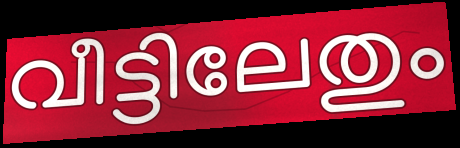
വീട്ടിലേതും